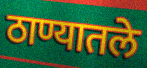
ठाण्यातले